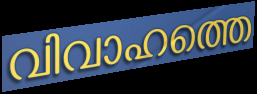
വിവാഹത്തെ